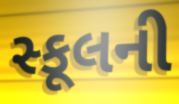
સ્કૂલની